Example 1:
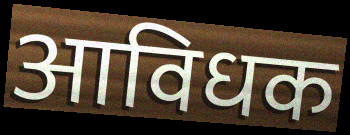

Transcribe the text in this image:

आविधक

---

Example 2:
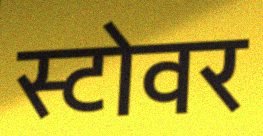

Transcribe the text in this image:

स्टोवर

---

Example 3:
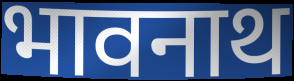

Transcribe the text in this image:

भावनाथ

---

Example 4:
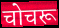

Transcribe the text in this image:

चोचरू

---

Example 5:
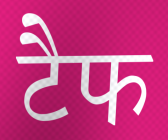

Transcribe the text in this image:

टैफ